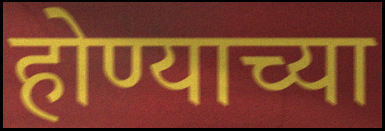
होण्याच्या